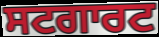
ਸਟਗਾਰਟ